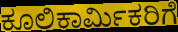
ಕೂಲಿಕಾರ್ಮಿಕರಿಗೆ